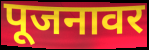
पूजनावर